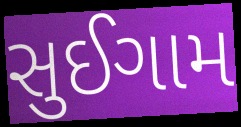
સુઈગામ